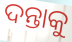
ଦନ୍ତାକୁ